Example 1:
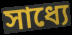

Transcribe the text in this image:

সাধ্যে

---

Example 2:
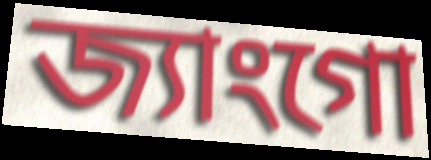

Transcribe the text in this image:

জ্যাংগো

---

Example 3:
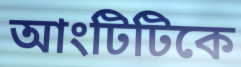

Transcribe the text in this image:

আংটিটিকে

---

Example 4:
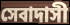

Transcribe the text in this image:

সেবাদাসী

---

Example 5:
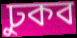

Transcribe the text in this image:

ঢুকব